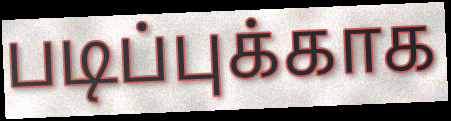
படிப்புக்காக